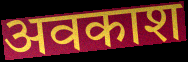
अवकाश